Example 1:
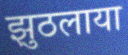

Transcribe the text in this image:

झुठलाया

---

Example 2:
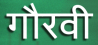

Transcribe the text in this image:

गौरवी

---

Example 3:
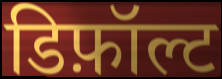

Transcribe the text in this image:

डिफ़ॉल्ट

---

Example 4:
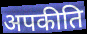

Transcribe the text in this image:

अपकीति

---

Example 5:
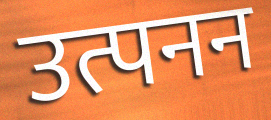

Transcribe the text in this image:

उत्पनन